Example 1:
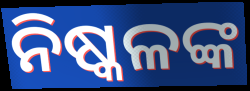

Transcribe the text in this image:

ନିଷ୍କଳଙ୍କ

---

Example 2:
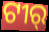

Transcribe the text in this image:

ଟୀର୍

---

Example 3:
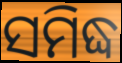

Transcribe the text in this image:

ସମିଦ୍ଧ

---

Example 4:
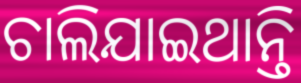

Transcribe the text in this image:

ଚାଲିଯାଇଥାନ୍ତି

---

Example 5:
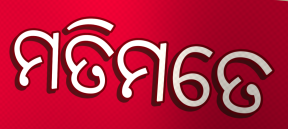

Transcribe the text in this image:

ମତିମତେ